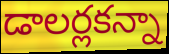
డాలర్లకన్నా